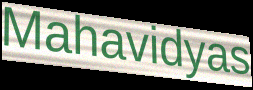
Mahavidyas